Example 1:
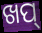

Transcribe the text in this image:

ଖପ୍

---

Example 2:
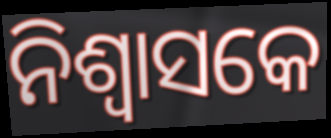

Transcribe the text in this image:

ନିଶ୍ଵାସକେ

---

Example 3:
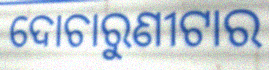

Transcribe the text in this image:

ଦୋଚାରୁଣୀଟାର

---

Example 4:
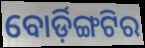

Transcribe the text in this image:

ବୋର୍ଡ଼ିଙ୍ଗଟିର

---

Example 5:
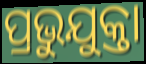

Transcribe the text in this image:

ପ୍ରଭୁଯୁକ୍ତା